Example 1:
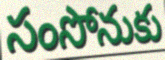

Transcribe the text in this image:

సంసోనుకు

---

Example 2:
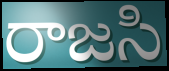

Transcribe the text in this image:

రాజసి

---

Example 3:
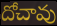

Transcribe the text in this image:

దోచావు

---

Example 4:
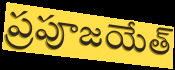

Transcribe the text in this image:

ప్రపూజయేత్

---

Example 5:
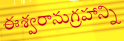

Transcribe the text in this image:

ఈశ్వరానుగ్రహాన్ని